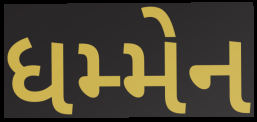
ધમ્મેન